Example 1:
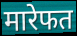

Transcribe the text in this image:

मारेफत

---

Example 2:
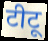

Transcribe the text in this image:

टीटू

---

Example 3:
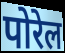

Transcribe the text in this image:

पोरेल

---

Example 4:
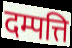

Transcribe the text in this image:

दम्पत्ति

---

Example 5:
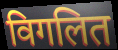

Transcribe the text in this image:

विगलित